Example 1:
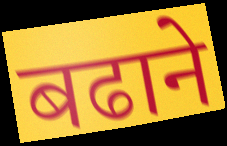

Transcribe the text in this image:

बढाने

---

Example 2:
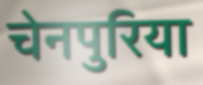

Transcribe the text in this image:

चेनपुरिया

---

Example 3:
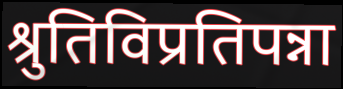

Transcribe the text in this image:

श्रुतिविप्रतिपन्ना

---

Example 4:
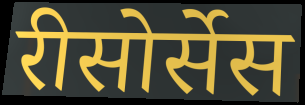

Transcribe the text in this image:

रीसोर्सेस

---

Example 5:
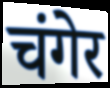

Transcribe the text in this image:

चंगेर